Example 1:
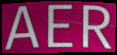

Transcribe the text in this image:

AER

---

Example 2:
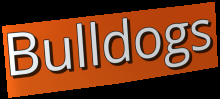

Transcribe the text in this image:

Bulldogs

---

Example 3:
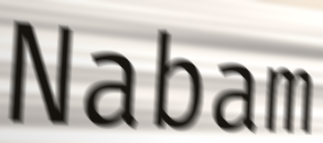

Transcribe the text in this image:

Nabam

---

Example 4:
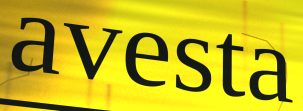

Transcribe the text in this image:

avesta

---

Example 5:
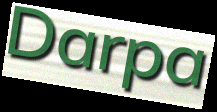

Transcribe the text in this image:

Darpa